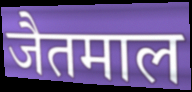
जैतमाल